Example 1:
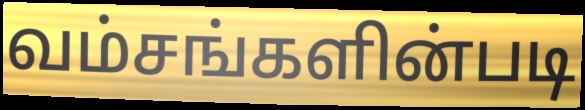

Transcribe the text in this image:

வம்சங்களின்படி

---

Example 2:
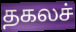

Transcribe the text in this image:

தகலச்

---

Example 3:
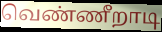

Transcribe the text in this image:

வெண்ணீறாடி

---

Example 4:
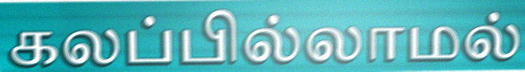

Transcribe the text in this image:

கலப்பில்லாமல்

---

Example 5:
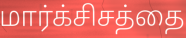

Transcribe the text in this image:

மார்க்சிசத்தை